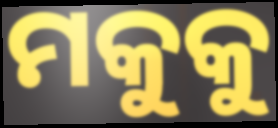
ମକୁକୁ